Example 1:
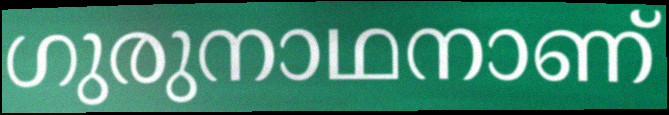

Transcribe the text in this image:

ഗുരുനാഥനാണ്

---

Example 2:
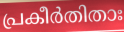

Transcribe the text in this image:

പ്രകീർതിതാഃ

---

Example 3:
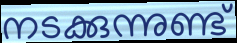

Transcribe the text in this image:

നടക്കുന്നുണ്ട്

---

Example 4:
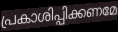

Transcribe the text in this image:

പ്രകാശിപ്പിക്കണമേ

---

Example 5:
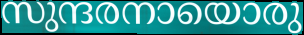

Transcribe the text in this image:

സുന്ദരനായൊരു